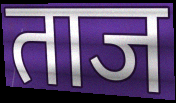
ताज